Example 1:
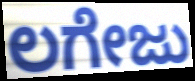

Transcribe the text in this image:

ಲಗೇಜು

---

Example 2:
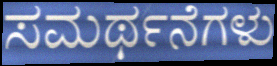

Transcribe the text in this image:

ಸಮರ್ಥನೆಗಳು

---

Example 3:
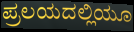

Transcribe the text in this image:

ಪ್ರಲಯದಲ್ಲಿಯೂ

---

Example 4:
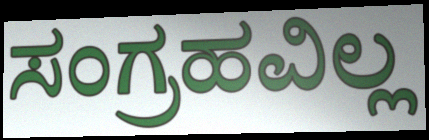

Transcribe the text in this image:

ಸಂಗ್ರಹವಿಲ್ಲ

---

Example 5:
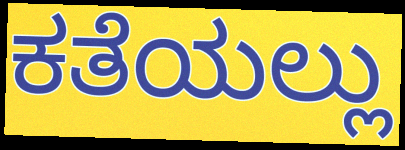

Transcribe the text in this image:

ಕತೆಯಲ್ಲು